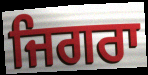
ਜਿਗਰਾ